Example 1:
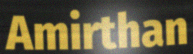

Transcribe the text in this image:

Amirthan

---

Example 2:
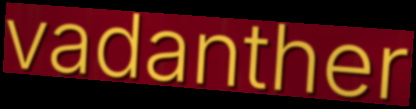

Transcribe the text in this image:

vadanther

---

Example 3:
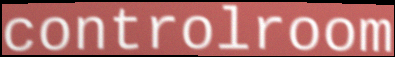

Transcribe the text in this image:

controlroom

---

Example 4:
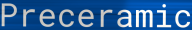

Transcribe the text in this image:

Preceramic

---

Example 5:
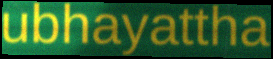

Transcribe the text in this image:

ubhayattha